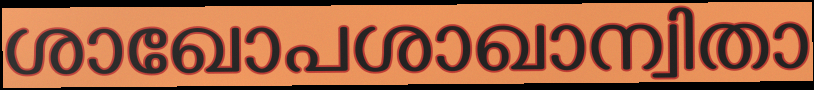
ശാഖോപശാഖാന്വിതാ